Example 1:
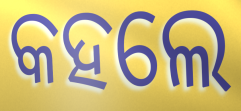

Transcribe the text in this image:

କହଲେ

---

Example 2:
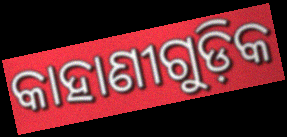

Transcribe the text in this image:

କାହାଣୀଗୁଡ଼ିକ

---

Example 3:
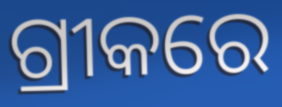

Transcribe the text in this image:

ଗ୍ରୀକରେ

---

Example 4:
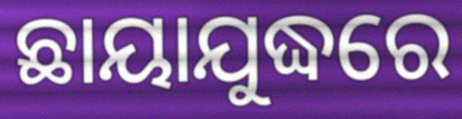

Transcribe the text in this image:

ଛାୟାଯୁଦ୍ଧରେ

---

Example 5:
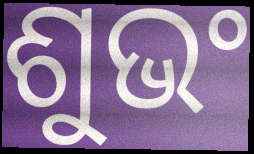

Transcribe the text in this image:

ଶୁଭଂ